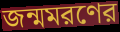
জন্মমরণের